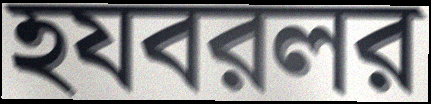
হযবরলর